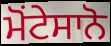
ਮੋਂਟੇਸਾਨੋ